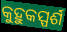
କୁହୁକସ୍ପର୍ଶ